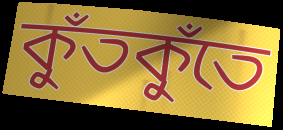
কুঁতকুঁতে